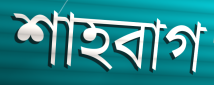
শাহবাগ